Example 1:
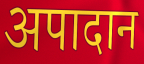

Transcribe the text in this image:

अपादान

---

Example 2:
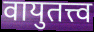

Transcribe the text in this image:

वायुतत्त्व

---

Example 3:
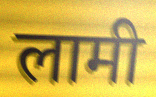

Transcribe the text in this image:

लामी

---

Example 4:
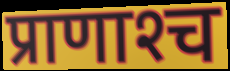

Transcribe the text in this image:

प्राणाश्च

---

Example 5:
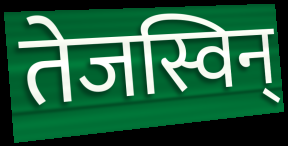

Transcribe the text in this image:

तेजस्विन्